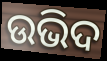
ଉଭିଦ